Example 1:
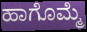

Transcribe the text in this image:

ಹಾಗೊಮ್ಮೆ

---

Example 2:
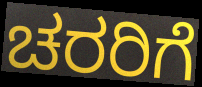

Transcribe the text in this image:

ಚರರಿಗೆ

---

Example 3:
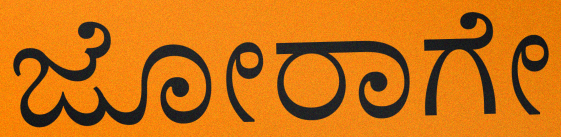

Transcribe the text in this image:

ಜೋರಾಗೇ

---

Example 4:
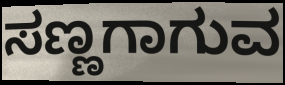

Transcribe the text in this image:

ಸಣ್ಣಗಾಗುವ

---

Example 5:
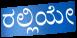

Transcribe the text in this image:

ರಲ್ಲಿಯೇ